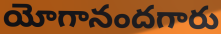
యోగానందగారు